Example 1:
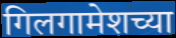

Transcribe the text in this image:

गिलगामेशच्या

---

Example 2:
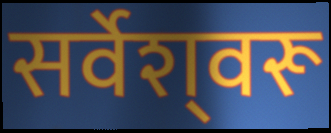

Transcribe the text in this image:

सर्वेश्वरू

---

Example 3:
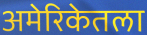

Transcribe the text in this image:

अमेरिकेतला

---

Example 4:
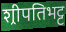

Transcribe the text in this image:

श्रीपतिभट्ट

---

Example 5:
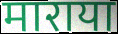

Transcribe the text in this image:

माराया